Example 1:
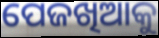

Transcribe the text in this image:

ପେଜଖିଆକୁ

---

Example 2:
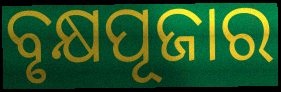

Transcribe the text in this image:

ବୃକ୍ଷପୂଜାର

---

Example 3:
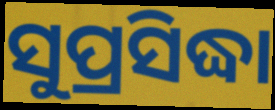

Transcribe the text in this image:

ସୁପ୍ରସିଦ୍ଧା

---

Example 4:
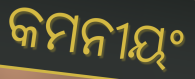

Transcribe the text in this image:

କମନୀୟଂ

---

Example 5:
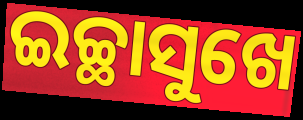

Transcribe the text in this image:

ଇଚ୍ଛାସୁଖେ